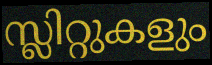
സ്ലിറ്റുകളും